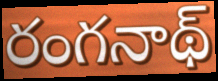
రంగనాథ్